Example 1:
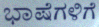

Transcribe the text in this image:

ಭಾಷೆಗಳಿಗೆ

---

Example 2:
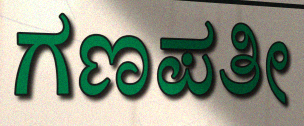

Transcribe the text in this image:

ಗಣಪತೀ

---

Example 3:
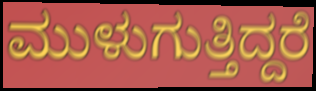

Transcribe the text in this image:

ಮುಳುಗುತ್ತಿದ್ದರೆ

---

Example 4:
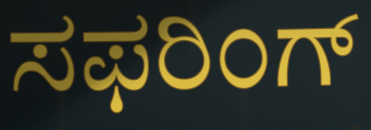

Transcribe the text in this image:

ಸಫರಿಂಗ್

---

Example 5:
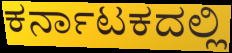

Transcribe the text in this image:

ಕರ್ನಾಟಕದಲ್ಲಿ